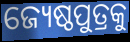
ଜ୍ୟେଷ୍ଠପୁତ୍ରକୁ